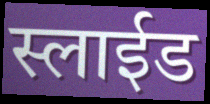
स्लाईड